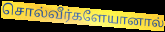
சொல்வீர்களேயானால்